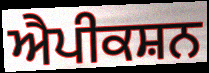
ਐਪੀਕਸ਼ਨ